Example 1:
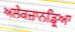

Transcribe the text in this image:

ਅਲੇਕਜ਼ਾਨਡ੍ਰਿਆ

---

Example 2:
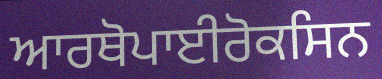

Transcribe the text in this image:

ਆਰਥੋਪਾਈਰੋਕਸਿਨ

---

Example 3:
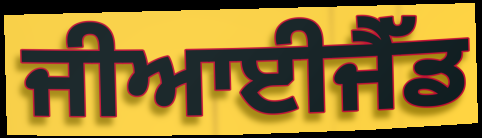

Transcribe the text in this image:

ਜੀਆਈਜੈੱਡ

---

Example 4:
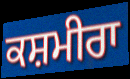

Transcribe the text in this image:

ਕਸ਼ਮੀਰਾ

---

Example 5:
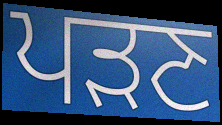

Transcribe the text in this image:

ਪੜਣ